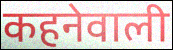
कहनेवाली